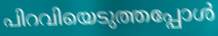
പിറവിയെടുത്തപ്പോൾ